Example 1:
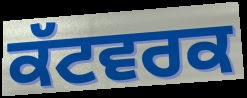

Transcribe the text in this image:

ਕੱਟਵਰਕ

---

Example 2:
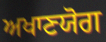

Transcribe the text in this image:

ਅਖਾਣਯੋਗ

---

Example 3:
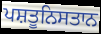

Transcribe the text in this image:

ਪਸ਼ਤੂਨਿਸਤਾਨ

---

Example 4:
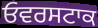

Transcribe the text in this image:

ਓਵਰਸਟਾਕ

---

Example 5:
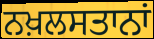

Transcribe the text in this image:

ਨਖ਼ਲਸਤਾਨਾਂ